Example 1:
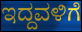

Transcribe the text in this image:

ಇದ್ದವಳಿಗೆ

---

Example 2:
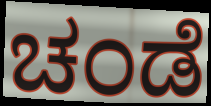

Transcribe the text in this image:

ಚಂಡೆ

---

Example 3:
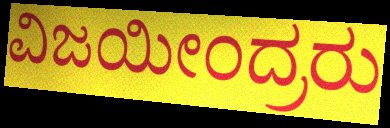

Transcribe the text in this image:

ವಿಜಯೀಂದ್ರರು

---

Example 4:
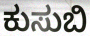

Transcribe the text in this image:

ಕುಸುಬಿ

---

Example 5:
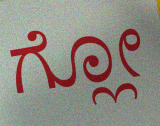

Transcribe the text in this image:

ಗ್ಲೋ